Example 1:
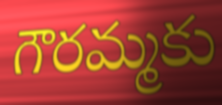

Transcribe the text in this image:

గౌరమ్మకు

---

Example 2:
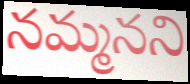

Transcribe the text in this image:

నమ్మనని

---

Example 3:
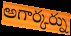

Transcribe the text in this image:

అగార్కర్ను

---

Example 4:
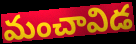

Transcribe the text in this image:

మంచావిడ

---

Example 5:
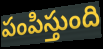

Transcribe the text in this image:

పంపిస్తుంది